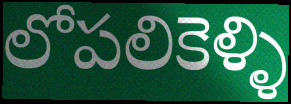
లోపలికెళ్ళి